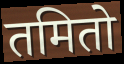
तमितो